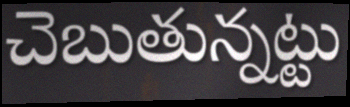
చెబుతున్నట్టు